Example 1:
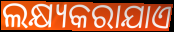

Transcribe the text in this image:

ଲକ୍ଷ୍ୟକରାଯାଏ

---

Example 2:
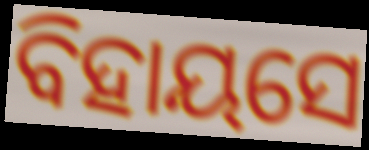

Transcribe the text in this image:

ବିହାୟସେ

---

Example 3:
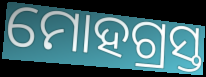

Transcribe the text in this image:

ମୋହଗ୍ରସ୍ତ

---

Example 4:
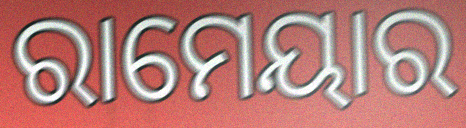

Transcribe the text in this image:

ରାମେୟାର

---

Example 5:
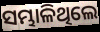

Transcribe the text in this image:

ସମ୍ଭାଳିଥିଲେ